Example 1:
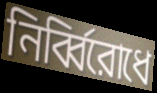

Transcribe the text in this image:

নির্ব্বিরোধে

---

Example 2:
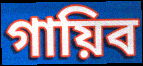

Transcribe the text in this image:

গায়িব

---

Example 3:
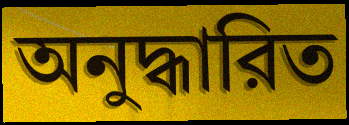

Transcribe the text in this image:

অনুদ্ধারিত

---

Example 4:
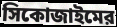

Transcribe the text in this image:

সিকোজাইমের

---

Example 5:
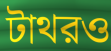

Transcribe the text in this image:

টাথরও